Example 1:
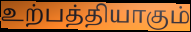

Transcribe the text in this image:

உற்பத்தியாகும்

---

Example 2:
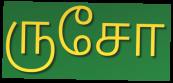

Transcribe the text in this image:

ருசோ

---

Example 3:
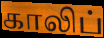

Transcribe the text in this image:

காலிப்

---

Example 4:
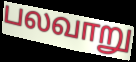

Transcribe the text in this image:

பலவாறு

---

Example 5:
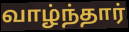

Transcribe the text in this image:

வாழ்ந்தார்